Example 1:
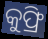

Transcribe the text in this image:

କୁଫ୍ରି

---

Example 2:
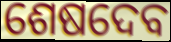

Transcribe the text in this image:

ଶେଷଦେବ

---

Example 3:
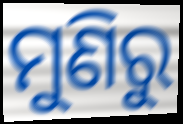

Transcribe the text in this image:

ମୁଣିରୁ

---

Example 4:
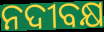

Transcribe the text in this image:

ନଦୀବକ୍ଷ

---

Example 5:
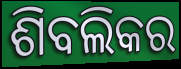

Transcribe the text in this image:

ଶିବଲିକର